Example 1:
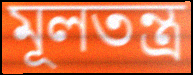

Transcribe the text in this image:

মূলতন্ত্র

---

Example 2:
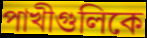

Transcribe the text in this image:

পাখীগুলিকে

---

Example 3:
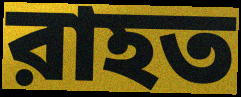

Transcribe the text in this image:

রাহত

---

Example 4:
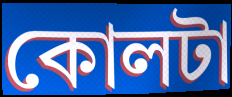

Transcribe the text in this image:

কোলটা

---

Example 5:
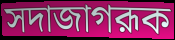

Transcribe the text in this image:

সদাজাগরূক